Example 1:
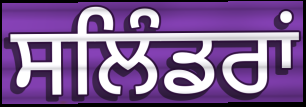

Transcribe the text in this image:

ਸਲਿੰਡਰਾਂ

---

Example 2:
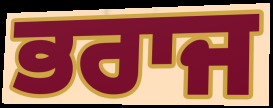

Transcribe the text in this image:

ਭਰਾਜ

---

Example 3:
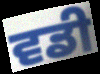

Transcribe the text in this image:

ਵਡੀ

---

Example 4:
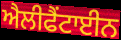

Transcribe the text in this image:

ਐਲੀਫੈਂਟਾਈਨ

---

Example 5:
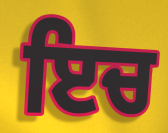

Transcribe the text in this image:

ਇਚ